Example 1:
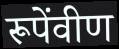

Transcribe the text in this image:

रूपेंवीण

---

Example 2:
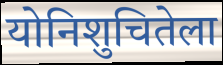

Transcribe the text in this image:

योनिशुचितेला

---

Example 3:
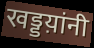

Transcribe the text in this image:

खड्डय़ांनी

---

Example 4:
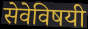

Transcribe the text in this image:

सेवेविषयी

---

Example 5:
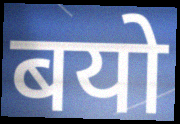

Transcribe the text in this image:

बयो